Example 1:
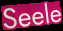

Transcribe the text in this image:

Seele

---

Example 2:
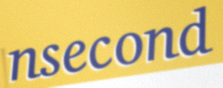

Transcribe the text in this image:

nsecond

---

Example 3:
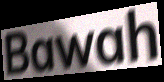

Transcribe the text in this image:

Bawah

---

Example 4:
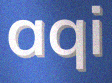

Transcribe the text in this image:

aqi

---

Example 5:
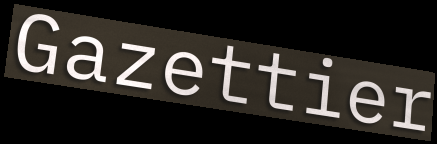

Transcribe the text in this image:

Gazettier